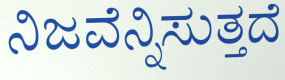
ನಿಜವೆನ್ನಿಸುತ್ತದೆ